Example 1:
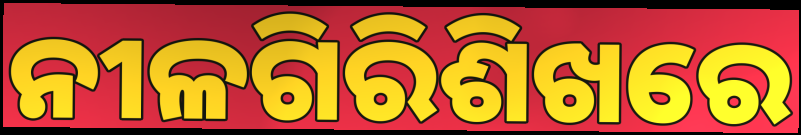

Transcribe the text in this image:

ନୀଳଗିରିଶିଖରେ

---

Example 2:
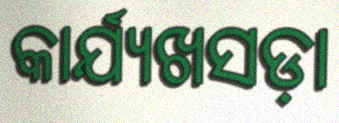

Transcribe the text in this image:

କାର୍ଯ୍ୟଖସଡ଼ା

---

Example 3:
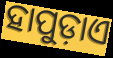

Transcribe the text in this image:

ହାପୁଡ଼ାଏ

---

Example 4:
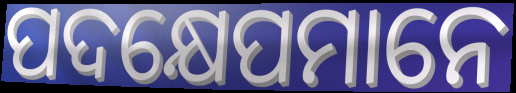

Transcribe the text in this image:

ପଦକ୍ଷେପମାନେ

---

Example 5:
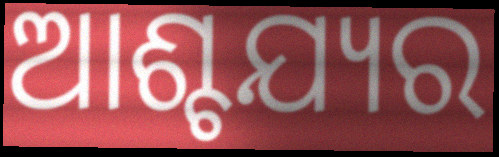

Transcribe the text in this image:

ଆଶ୍ଚଯ୍ୟର